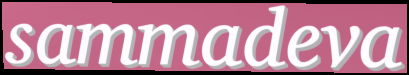
sammadeva